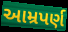
આમ્રપર્ણ